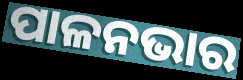
ପାଳନଭାର